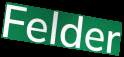
Felder